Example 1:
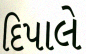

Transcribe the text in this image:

દિપાલે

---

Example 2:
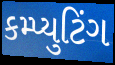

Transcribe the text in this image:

કમ્પ્યુટિંગ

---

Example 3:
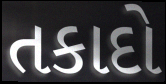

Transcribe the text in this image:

તકાદો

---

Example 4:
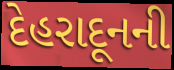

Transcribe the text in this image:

દેહરાદૂનની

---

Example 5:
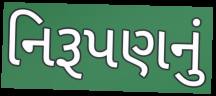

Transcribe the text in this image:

નિરૂપણનું